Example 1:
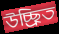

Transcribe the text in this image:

উচ্ছ্রিত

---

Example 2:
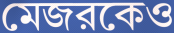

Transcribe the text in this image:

মেজরকেও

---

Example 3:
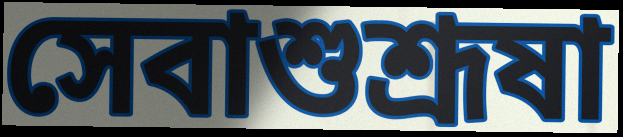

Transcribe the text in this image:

সেবাশুশ্রূষা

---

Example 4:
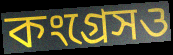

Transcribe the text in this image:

কংগ্রেসও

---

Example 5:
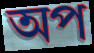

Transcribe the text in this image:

অপ